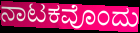
ನಾಟಕವೊಂದು